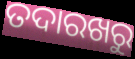
ତଦାରଖରୁ